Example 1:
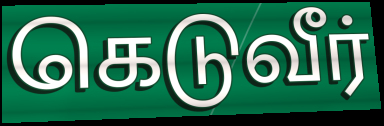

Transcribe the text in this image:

கெடுவீர்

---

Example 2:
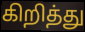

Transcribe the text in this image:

கிறித்து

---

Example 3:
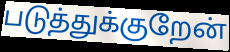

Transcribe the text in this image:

படுத்துக்குறேன்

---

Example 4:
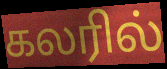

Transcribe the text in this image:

கலரில்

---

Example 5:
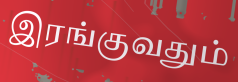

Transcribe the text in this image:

இரங்குவதும்